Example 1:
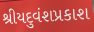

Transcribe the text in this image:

શ્રીયદુવંશપ્રકાશ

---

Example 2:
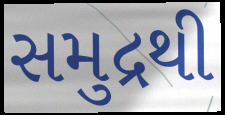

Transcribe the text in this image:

સમુદ્રથી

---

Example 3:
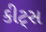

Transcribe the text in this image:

કીટ્સ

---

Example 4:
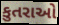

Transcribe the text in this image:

કુતરાઓ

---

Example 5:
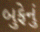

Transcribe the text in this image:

બુફેનું